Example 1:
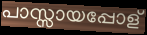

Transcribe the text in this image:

പാസ്സായപ്പോള്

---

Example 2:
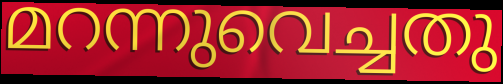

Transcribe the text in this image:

മറന്നുവെച്ചതു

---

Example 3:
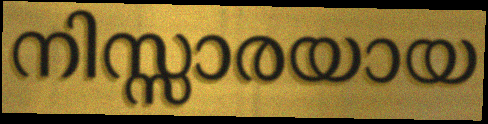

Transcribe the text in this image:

നിസ്സാരയായ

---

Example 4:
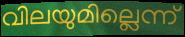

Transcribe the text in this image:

വിലയുമില്ലെന്ന്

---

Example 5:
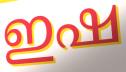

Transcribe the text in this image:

ഇഷ